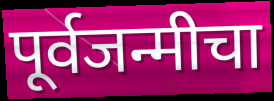
पूर्वजन्मीचा